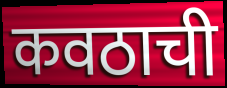
कवठाची